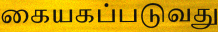
கையகப்படுவது